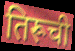
तिरूची